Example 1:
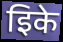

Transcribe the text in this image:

इिके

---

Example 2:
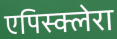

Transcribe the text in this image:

एपिस्क्लेरा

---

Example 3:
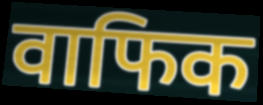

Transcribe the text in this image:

वाफिक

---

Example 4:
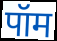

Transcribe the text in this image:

पॉम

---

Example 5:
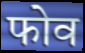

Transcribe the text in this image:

फोव